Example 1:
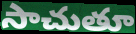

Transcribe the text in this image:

సాచుతూ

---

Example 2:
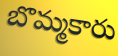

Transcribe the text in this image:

బొమ్మకారు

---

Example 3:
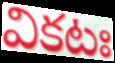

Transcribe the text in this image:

వికటః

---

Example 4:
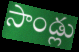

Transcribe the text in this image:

సాండ్లు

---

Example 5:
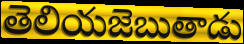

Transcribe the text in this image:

తెలియజెబుతాడు